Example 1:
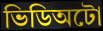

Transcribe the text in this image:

ভিডিঅটো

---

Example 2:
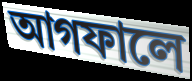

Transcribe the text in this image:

আগফালে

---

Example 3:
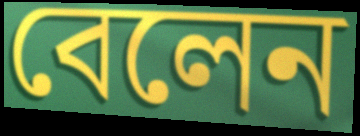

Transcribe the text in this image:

বেলেন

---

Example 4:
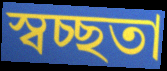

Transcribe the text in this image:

স্বচ্ছতা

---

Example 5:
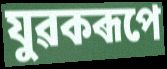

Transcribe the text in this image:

যুৱকৰূপে